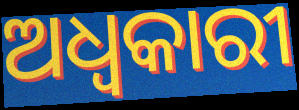
ଅଧ୍ବକାରୀ